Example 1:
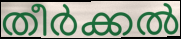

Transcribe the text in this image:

തീർക്കൽ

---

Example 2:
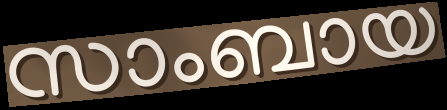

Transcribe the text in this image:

സാംബായ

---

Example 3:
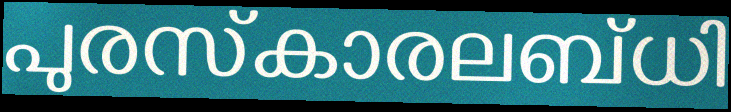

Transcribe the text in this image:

പുരസ്‌കാരലബ്ധി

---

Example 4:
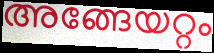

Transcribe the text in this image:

അങ്ങേയറ്റം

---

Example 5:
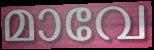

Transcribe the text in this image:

മാവേ